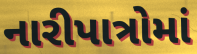
નારીપાત્રોમાં